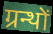
ग्रन्थों